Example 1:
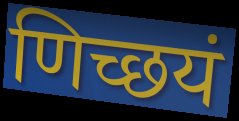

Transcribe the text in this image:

णिच्छयं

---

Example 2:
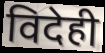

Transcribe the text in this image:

विदेही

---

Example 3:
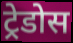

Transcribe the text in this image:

ट्रेडोस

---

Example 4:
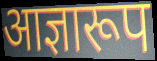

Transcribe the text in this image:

आज्ञारूप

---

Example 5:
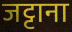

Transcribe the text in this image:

जट्टाना